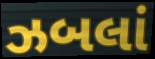
ઝબલાં